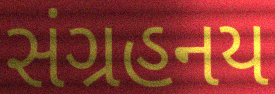
સંગ્રહનય